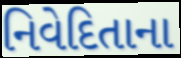
નિવેદિતાના